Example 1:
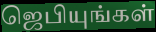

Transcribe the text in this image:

ஜெபியுங்கள்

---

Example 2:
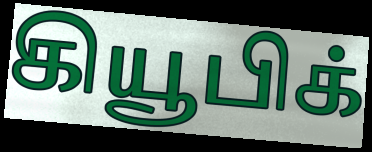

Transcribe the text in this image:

கியூபிக்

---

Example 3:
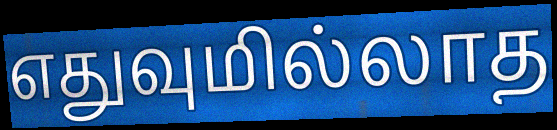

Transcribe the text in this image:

எதுவுமில்லாத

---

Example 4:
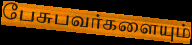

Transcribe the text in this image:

பேசுபவர்களையும்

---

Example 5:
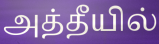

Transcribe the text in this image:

அத்தீயில்